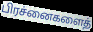
பிரச்னைகளைத்